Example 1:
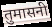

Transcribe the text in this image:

तुमासनी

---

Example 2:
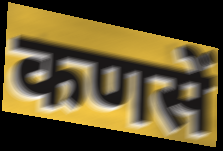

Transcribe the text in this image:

कणसें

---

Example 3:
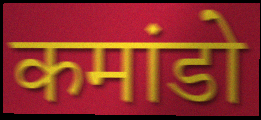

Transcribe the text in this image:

कमांडो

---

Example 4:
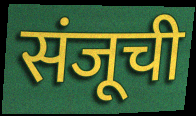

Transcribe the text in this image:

संजूची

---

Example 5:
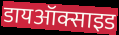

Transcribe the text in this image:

डायऑक्साइड